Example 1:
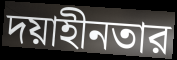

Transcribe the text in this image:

দয়াহীনতার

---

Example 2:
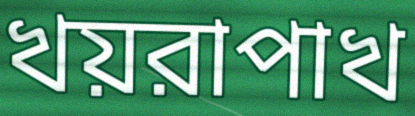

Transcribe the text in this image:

খয়রাপাখ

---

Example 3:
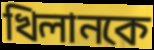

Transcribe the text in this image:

খিলানকে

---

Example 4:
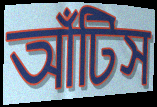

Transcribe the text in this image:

আঁটিস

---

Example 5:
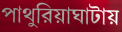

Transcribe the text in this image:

পাথুরিয়াঘাটায়